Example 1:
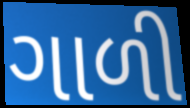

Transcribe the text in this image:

ગાળી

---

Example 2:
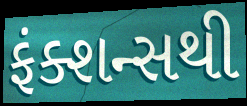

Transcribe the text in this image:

ફંક્શન્સથી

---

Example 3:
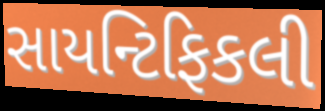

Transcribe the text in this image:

સાયન્ટિફિકલી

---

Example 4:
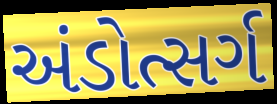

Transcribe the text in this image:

અંડોત્સર્ગ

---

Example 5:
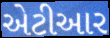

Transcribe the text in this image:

એટીઆર